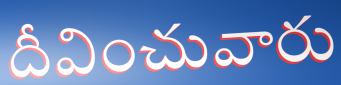
దీవించువారు